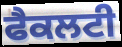
ਫੈਕਲਟੀ